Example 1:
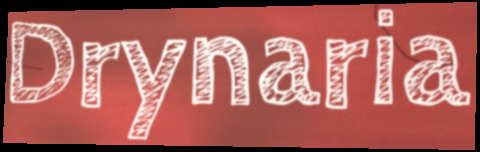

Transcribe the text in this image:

Drynaria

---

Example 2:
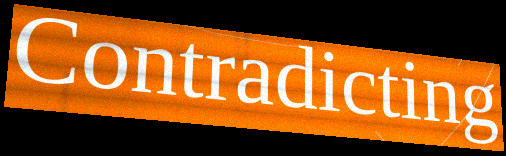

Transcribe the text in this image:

Contradicting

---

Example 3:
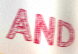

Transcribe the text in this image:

AND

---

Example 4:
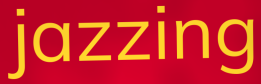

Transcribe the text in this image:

jazzing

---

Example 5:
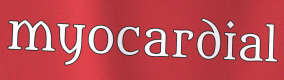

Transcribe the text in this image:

myocardial